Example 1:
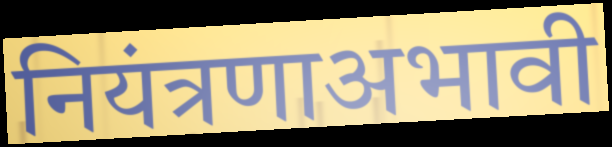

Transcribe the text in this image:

नियंत्रणाअभावी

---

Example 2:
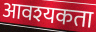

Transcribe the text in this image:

आवश्‍यकता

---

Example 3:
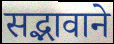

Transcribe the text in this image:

सद्भावाने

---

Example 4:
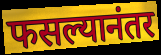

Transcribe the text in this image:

फसल्यानंतर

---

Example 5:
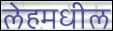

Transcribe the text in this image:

लेहमधील